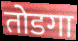
तोडगा